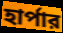
হার্পার